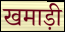
खमाड़ी